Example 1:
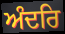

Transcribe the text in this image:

ਅੰਦਰਿ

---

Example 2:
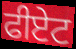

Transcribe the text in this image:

ਫੀਏਟ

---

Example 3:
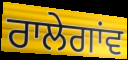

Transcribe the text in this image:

ਰਾਲੇਗਾਂਵ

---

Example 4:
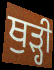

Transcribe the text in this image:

ਥੁੜ੍ਹੀ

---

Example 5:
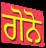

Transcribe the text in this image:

ਗੋਨੋ